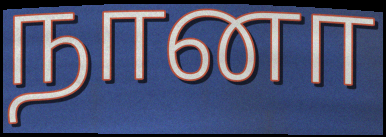
நானா